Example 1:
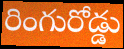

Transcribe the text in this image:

రింగురోడ్డు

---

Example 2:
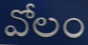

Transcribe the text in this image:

వోలం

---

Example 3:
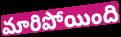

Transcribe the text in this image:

మారిపోయింది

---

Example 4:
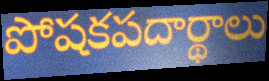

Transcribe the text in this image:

పోషకపదార్థాలు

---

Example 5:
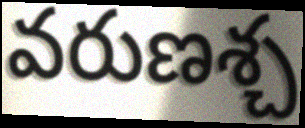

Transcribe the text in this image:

వరుణశ్చ